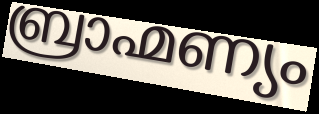
ബ്രാഹ്മണ്യം